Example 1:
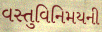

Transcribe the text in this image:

વસ્તુવિનિમયની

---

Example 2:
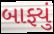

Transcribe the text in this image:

બાફ્યું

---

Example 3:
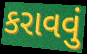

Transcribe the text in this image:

કરાવવું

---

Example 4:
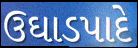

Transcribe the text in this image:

ઉઘાડપાદે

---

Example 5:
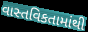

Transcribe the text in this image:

વાસ્તવિકતામાંથી